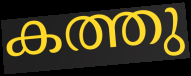
കത്തു